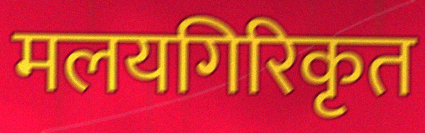
मलयगिरिकृत